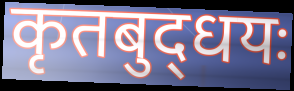
कृतबुद्धयः